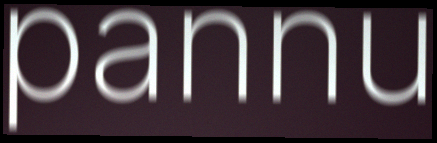
pannu